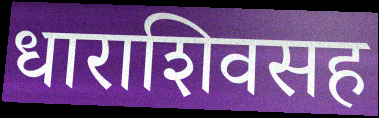
धाराशिवसह